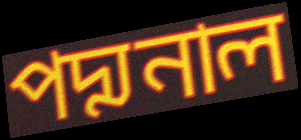
পদ্মনাল